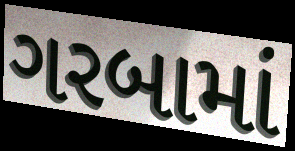
ગરબામાં